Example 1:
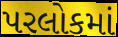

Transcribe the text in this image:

પરલોકમાં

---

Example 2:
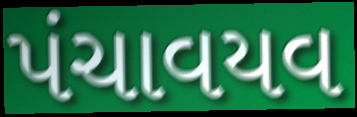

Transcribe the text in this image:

પંચાવયવ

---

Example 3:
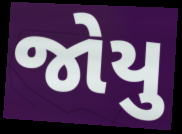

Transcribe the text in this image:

જોયુ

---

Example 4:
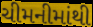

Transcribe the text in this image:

ચીમનીમાંથી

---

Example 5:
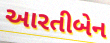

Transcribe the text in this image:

આરતીબેન